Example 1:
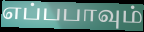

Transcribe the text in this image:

எப்பபாவும்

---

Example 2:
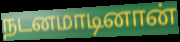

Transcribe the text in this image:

நடனமாடினான்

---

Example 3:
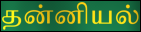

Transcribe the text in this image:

தன்னியல்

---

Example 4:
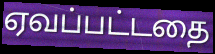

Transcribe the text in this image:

ஏவப்பட்டதை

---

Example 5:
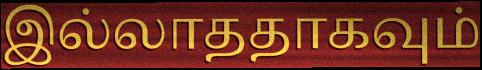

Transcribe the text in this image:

இல்லாததாகவும்